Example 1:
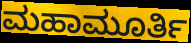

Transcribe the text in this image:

ಮಹಾಮೂರ್ತಿ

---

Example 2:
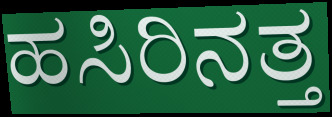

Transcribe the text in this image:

ಹಸಿರಿನತ್ತ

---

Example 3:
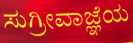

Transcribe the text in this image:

ಸುಗ್ರೀವಾಜ್ಞೆಯ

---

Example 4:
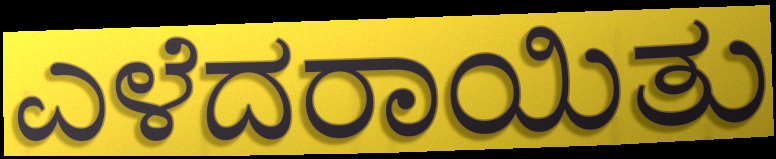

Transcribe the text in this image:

ಎಳೆದರಾಯಿತು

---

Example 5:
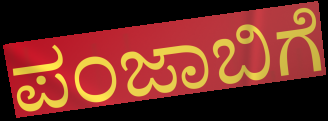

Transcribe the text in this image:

ಪಂಜಾಬಿಗೆ